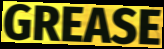
GREASE